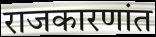
राजकारणांत